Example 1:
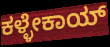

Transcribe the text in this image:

ಕಳ್ಳೇಕಾಯ್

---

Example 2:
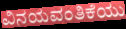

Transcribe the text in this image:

ವಿನಯವಂತಿಕೆಯು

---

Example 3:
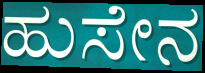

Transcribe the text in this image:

ಹುಸೇನ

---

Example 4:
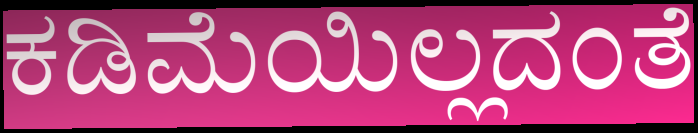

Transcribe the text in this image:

ಕಡಿಮೆಯಿಲ್ಲದಂತೆ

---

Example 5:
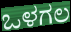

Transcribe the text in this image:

ಒಳಗಲ